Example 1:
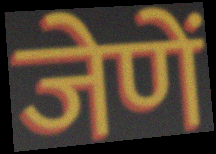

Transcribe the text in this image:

जेणें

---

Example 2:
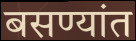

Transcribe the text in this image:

बसण्यांत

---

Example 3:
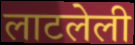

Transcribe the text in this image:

लाटलेली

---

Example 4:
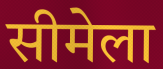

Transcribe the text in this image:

सीमेला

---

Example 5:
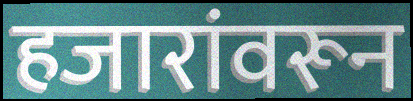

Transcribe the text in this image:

हजारांवरून